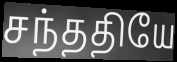
சந்ததியே